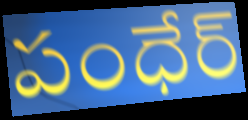
పంధేర్